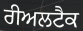
ਰੀਅਲਟੈਕ